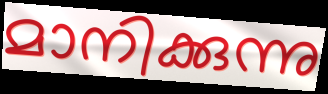
മാനിക്കുന്നു